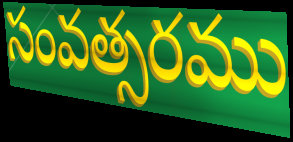
సంవత్సరము